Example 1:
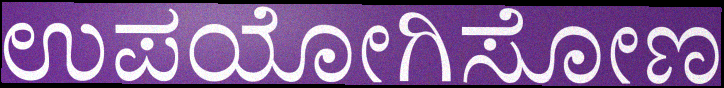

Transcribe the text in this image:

ಉಪಯೋಗಿಸೋಣ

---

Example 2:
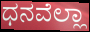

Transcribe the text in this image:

ಧನವೆಲ್ಲಾ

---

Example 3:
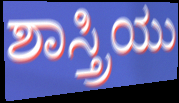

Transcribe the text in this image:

ಶಾಸ್ತ್ರಿಯು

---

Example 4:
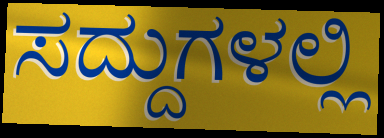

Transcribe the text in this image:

ಸದ್ದುಗಳಲ್ಲಿ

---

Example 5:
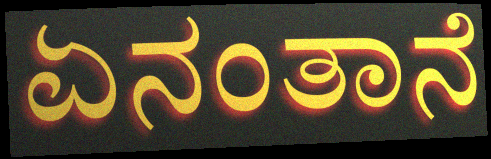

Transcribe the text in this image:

ಏನಂತಾನೆ